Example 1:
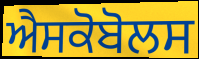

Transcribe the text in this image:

ਐਸਕੋਬੋਲਸ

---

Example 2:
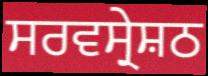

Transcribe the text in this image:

ਸਰਵਸ੍ਰੇਸ਼ਠ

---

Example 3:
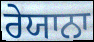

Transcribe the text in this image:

ਰੇਯਾਨਾ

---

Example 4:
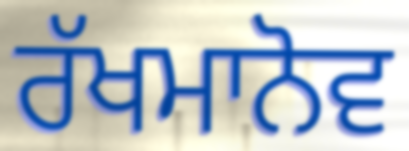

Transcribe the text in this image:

ਰੱਖਮਾਨੋਵ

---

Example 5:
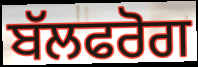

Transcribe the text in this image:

ਬੱਲਫਰੋਗ